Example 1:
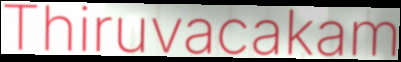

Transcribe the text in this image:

Thiruvacakam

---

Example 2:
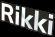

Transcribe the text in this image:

Rikki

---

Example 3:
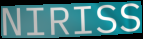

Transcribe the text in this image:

NIRISS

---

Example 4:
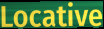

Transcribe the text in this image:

Locative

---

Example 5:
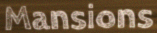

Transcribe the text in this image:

Mansions